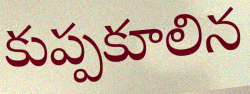
కుప్పకూలిన